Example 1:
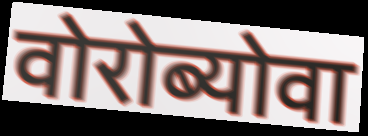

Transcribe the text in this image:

वोरोब्योवा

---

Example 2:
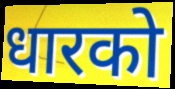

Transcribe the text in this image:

धारको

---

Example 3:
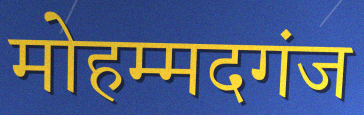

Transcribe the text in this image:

मोहम्मदगंज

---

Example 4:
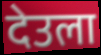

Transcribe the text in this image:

देउला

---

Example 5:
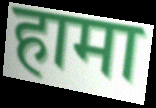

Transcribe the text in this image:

हामा